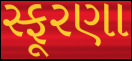
સ્ફૂરણા